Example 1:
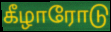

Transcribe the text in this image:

கீழாரோடு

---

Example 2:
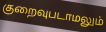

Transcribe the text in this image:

குறைவுபடாமலும்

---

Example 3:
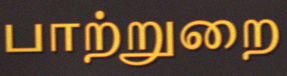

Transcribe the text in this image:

பாற்றுறை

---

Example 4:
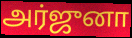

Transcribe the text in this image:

அர்ஜுனா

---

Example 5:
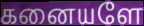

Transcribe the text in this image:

கனையளே